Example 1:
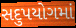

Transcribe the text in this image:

સદુપયોગમાં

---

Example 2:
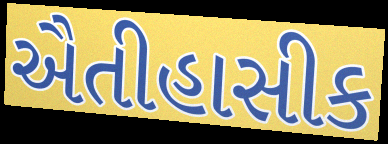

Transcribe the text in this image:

ઐતીહાસીક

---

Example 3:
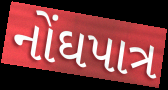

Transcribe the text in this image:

નોંઘપાત્ર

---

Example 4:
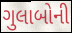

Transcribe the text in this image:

ગુલાબોની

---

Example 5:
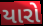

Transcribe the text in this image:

યારો